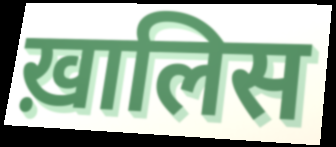
ख़ालिस